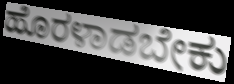
ಹೊರಳಾಡಬೇಕು